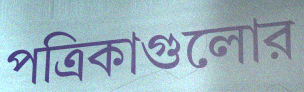
পত্রিকাগুলোর